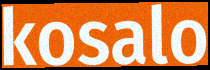
kosalo